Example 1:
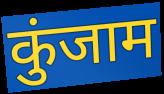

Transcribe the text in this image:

कुंजाम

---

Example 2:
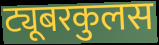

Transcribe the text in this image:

ट्यूबरकुलस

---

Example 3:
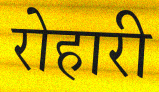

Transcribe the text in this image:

रोहारी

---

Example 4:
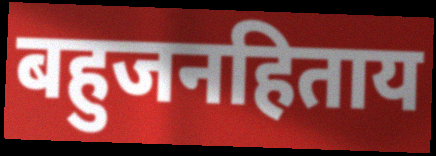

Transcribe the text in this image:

बहुजनहिताय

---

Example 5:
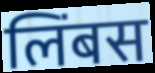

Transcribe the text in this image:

लिंबस